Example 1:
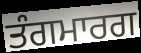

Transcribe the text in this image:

ਤੰਗਮਾਰਗ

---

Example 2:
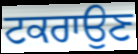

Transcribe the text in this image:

ਟਕਰਾਉਣ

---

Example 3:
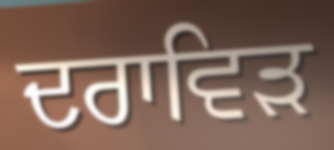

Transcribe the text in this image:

ਦਰਾਵਿੜ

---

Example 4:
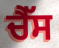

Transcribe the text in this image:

ਚੈੱਸ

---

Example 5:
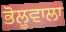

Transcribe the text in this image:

ਭੋਲੂਵਾਲਾ